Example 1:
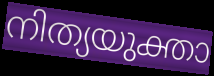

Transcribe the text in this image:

നിത്യയുക്താ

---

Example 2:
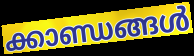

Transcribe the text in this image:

ക്കാണ്ഡങ്ങൾ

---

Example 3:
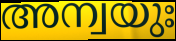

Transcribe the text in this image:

അന്വയുഃ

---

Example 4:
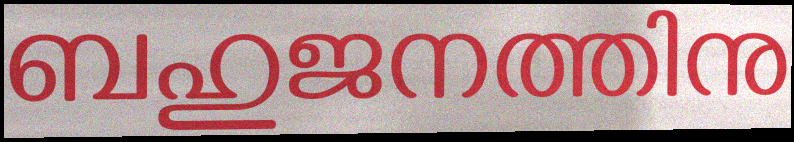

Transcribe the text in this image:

ബഹുജനത്തിനു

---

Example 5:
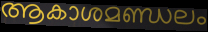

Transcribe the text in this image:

ആകാശമണ്ഡലം